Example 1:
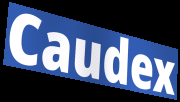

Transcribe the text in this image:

Caudex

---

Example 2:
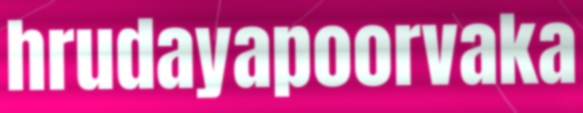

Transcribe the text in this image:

hrudayapoorvaka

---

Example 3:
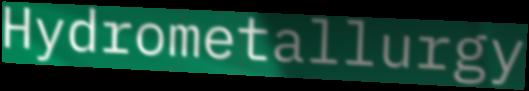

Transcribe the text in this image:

Hydrometallurgy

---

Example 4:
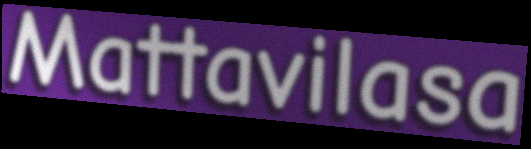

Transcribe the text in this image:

Mattavilasa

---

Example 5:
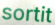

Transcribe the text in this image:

sortit